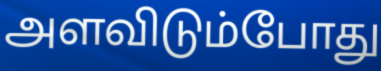
அளவிடும்போது